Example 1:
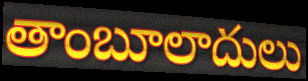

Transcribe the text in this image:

తాంబూలాదులు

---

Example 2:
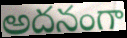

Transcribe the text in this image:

అదనంగా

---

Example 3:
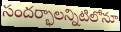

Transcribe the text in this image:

సందర్భాలన్నిటిలోనూ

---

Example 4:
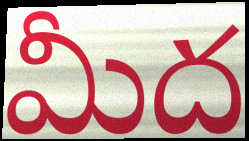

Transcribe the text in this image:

మీద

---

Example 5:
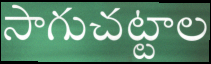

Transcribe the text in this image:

సాగుచట్టాల